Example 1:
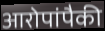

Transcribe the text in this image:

आरोपांपैकी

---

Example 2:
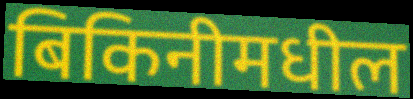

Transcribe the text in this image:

बिकिनीमधील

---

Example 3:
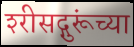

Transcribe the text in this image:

श्रीसद्गुरूंच्या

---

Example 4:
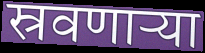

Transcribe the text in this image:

स्रवणाऱ्या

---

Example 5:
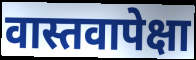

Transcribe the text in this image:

वास्तवापेक्षा